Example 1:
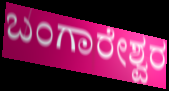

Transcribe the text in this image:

ಬಂಗಾರೇಶ್ವರ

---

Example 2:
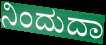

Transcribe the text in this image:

ನಿಂದುದಾ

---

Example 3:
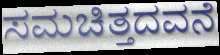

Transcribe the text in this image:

ಸಮಚಿತ್ತದವನೆ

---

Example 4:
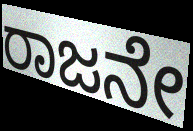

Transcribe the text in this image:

ರಾಜನೇ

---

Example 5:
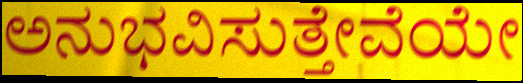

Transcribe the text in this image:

ಅನುಭವಿಸುತ್ತೇವೆಯೇ